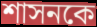
শাসনকে